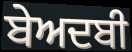
ਬੇਅਦਬੀ